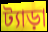
ট্যাড়া